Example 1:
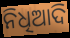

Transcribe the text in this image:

ନିଧିଆଦି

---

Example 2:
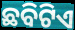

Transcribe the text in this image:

ଛବିଟିଏ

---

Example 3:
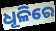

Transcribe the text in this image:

ଧୂଳିରେ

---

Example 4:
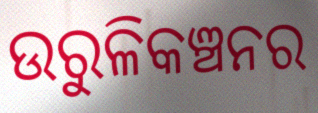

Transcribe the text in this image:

ଉରୁଳିକଞ୍ଚନର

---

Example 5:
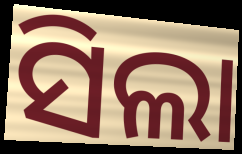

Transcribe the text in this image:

ସିଲା